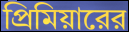
প্রিমিয়ারের